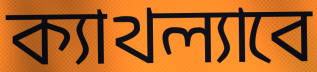
ক্যাথল্যাবে